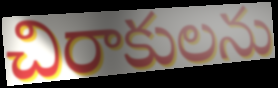
చిరాకులను